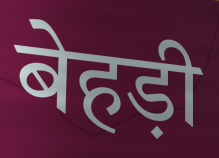
बेहड़ी